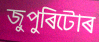
জুপুৰিটোৰ